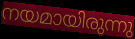
നയമായിരുന്നു